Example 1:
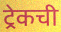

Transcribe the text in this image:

ट्रेकची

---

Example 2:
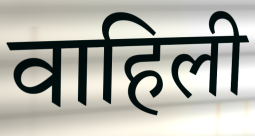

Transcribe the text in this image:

वाहिली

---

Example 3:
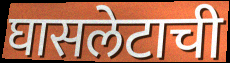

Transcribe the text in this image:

घासलेटाची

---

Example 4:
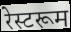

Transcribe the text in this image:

रेस्टरूम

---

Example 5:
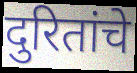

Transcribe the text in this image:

दुरितांचे